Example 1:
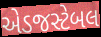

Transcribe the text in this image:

એડજસ્ટેબલ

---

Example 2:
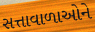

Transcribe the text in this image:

સત્તાવાળાઓને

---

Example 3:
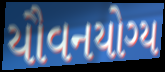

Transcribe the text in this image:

યૌવનયોગ્ય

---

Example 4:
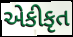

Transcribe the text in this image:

એકીકૃત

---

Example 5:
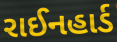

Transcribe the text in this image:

રાઈનહાર્ડ